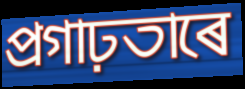
প্ৰগাঢ়তাৰে